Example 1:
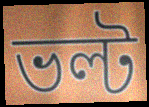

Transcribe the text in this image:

ভল্ট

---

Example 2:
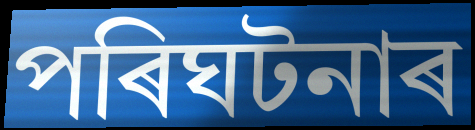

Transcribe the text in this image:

পৰিঘটনাৰ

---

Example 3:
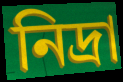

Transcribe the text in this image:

নিদ্ৰা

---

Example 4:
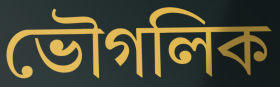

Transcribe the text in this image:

ভৌগলিক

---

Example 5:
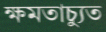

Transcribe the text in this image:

ক্ষমতাচ্যুত